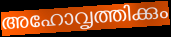
അഹോവൃത്തിക്കും